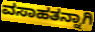
ವಸಾಹತನ್ನಾಗಿ